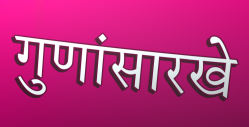
गुणांसारखे